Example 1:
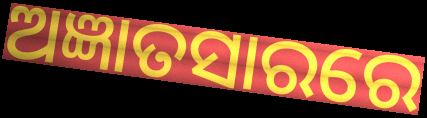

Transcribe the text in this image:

ଅଜ୍ଞାତସାରରେ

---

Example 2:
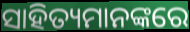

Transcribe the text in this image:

ସାହିତ୍ୟମାନଙ୍କରେ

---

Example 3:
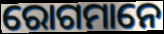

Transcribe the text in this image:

ରୋଗମାନେ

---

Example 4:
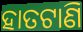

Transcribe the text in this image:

ହାତଟାଣି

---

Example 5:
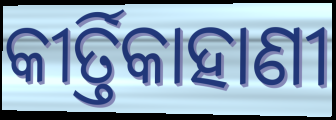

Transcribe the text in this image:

କୀର୍ତ୍ତିକାହାଣୀ